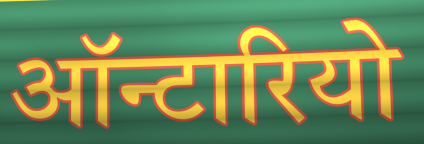
ऑन्टारियो